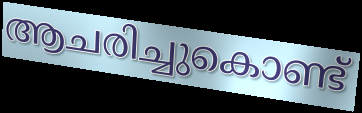
ആചരിച്ചുകൊണ്ട്